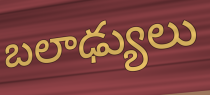
బలాఢ్యులు